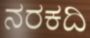
ನರಕದಿ